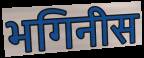
भगिनीस